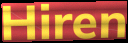
Hiren